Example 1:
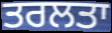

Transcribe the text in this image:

ਤਰਲਤਾ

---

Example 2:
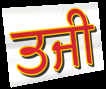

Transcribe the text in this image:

ਤਜੀ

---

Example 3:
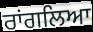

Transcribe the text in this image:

ਰਾਂਗਲਿਆ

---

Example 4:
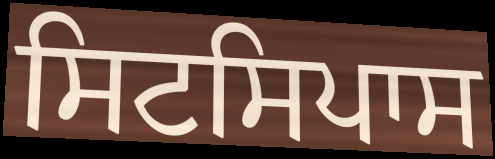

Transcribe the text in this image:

ਸਿਟਸਿਪਾਸ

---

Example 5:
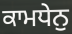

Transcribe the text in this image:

ਕਾਮਧੇਨੁ